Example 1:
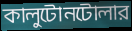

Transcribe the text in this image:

কালুটোনটোলার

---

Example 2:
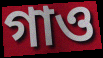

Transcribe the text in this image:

গাও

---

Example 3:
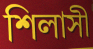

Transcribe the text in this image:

শিলাসী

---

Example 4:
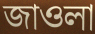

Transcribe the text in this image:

জাওলা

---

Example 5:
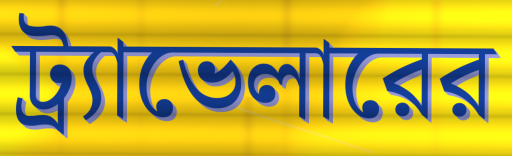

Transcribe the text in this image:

ট্র্যাভেলারের